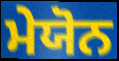
ਮੇਯੋਨ